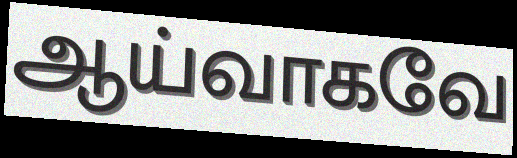
ஆய்வாகவே